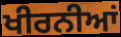
ਖੀਰਨੀਆਂ